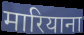
मारियाना